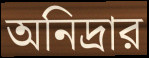
অনিদ্রার